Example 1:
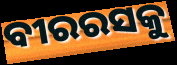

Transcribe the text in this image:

ବୀରରସକୁ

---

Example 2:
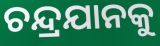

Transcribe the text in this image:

ଚନ୍ଦ୍ରଯାନକୁ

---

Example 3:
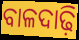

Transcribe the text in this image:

ବାଳଦାଢ଼ି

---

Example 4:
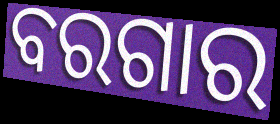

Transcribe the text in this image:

ବରଗାର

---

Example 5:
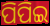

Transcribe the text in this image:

ପିପିଇ